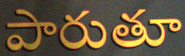
పారుతూ